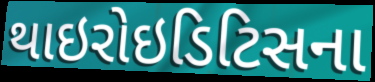
થાઇરોઇડિટિસના